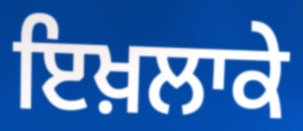
ਇਖ਼ਲਾਕੇ